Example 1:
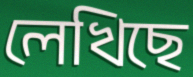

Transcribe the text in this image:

লেখিছে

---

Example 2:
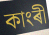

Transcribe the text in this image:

কাংৰী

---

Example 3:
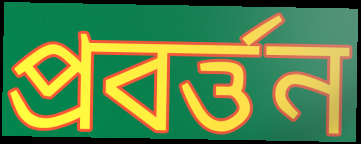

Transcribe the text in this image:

প্ৰবৰ্ত্তন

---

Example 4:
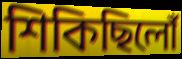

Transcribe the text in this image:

শিকিছিলোঁ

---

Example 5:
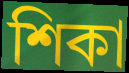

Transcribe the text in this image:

শিকা